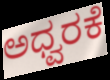
ಅಧ್ವರಕೆ